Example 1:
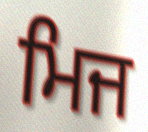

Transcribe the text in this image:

ਮਿਜ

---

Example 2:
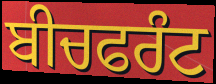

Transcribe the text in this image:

ਬੀਚਫਰੰਟ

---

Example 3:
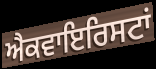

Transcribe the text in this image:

ਐਕਵਾਇਰਿਸਟਾਂ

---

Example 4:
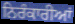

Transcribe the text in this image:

ਨਿਰੰਕਾਰੀਆਂ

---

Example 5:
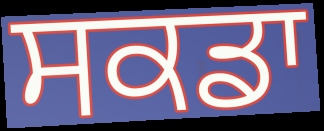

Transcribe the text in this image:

ਸਕਡਾ